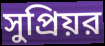
সুপ্রিয়র